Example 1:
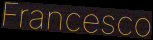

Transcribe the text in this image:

Francesco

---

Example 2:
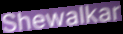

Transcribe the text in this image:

Shewalkar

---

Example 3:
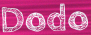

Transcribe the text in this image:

Dodo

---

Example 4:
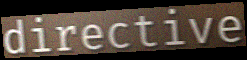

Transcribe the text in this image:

directive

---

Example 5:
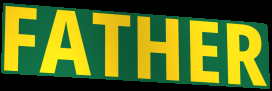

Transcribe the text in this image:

FATHER